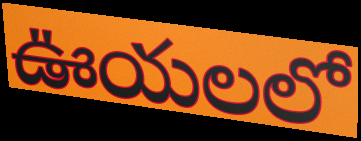
ఊయలలో